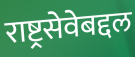
राष्ट्रसेवेबद्दल